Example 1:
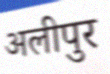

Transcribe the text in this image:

अलीपुर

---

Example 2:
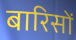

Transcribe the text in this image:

बारिसों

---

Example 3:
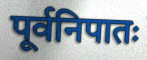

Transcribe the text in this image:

पूर्वनिपातः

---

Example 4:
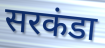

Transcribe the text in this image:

सरकंडा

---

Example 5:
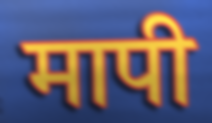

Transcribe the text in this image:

मापी